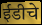
ईडीचे